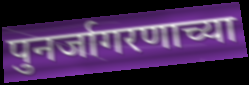
पुनर्जागरणाच्या